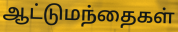
ஆட்டுமந்தைகள்